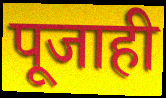
पूजाही